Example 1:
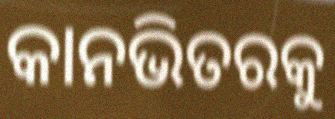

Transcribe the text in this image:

କାନଭିତରକୁ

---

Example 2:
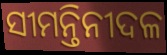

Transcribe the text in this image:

ସୀମନ୍ତିନୀଦଳ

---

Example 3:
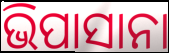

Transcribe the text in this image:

ଭିପାସାନା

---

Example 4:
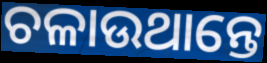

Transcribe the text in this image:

ଚଳାଉଥାନ୍ତେ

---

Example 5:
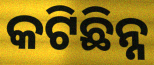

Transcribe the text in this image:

କଟିଛିନ୍ନ